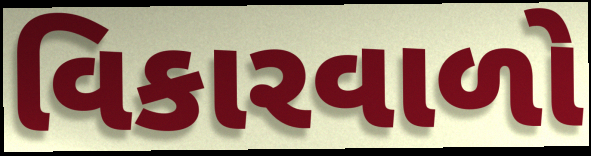
વિકારવાળો